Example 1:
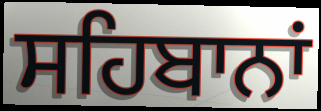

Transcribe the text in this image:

ਸਹਿਬਾਨਾਂ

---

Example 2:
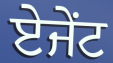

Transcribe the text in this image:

ਏਜੇਂਟ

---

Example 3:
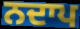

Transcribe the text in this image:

ਨਦਾਪ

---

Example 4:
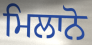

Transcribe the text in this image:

ਮਿਲਾਨੋ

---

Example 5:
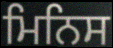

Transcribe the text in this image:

ਮਿਨਿਸ